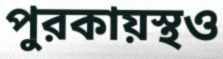
পুরকায়স্থও